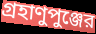
গ্রহাণুপুঞ্জের